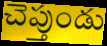
చెప్తుండు